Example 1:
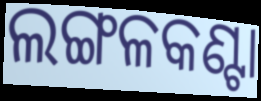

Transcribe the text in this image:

ଲଙ୍ଗଳକଣ୍ଟା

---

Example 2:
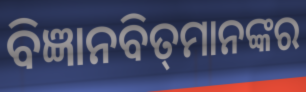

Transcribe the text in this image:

ବିଜ୍ଞାନବିତ୍‌ମାନଙ୍କର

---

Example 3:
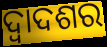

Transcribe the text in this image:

ଦ୍ୱାଦଶର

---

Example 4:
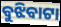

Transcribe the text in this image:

ବୁଝିବାଟା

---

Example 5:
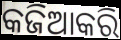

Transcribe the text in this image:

କଜିଆକରି